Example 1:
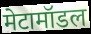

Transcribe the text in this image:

मेटामॉडल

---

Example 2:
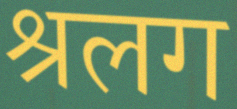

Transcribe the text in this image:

श्रलग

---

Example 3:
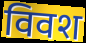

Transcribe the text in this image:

विवश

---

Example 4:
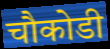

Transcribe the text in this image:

चौकोडी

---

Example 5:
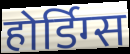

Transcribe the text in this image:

होर्डिग्स